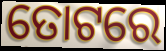
ତୋଟରେ